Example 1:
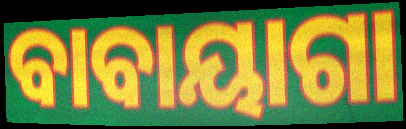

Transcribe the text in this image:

ବାବାୟାଗା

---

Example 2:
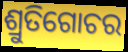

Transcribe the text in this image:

ଶ୍ରୁତିଗୋଚର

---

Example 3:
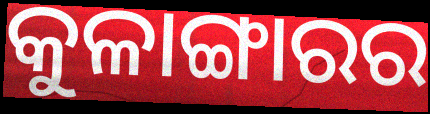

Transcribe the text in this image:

କୁଳାଙ୍ଗାରର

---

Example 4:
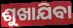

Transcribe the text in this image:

ଶୁଖାଯିବା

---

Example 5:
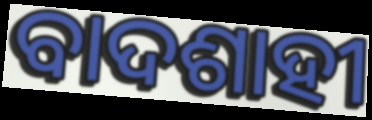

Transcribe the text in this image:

ବାଦଶାହୀ